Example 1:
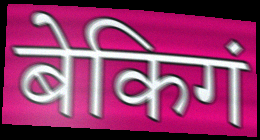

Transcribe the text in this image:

बेकिगं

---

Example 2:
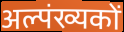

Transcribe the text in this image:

अल्पंख्यकों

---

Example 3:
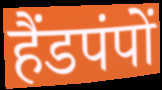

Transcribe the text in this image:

हैंडपंपों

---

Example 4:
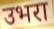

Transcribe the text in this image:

उभरा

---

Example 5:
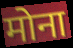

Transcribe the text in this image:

मोना